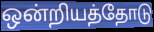
ஒன்றியத்தோடு